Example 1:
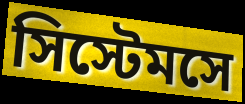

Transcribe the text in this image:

সিস্টেমসে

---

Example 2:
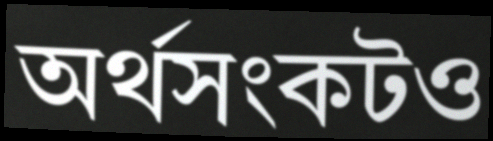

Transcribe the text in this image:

অর্থসংকটও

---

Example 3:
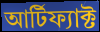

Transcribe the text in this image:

আর্টিফ্যাক্ট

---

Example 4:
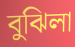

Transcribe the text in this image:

বুঝিলা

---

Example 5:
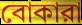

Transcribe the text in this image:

বোকারা